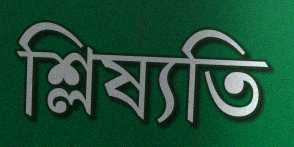
শ্লিষ্যতি